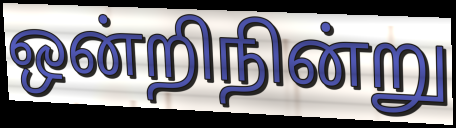
ஒன்றிநின்று